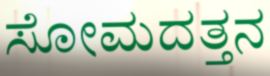
ಸೋಮದತ್ತನ